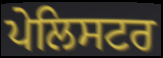
ਪੇਲਿਸਟਰ